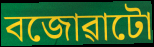
বজোৱাটো